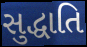
સુદ્ધાતિ